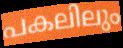
പകലിലും